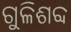
ଗୁଳିଶବ୍ଦ